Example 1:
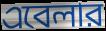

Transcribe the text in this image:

এবেলার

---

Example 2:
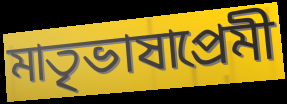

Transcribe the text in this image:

মাতৃভাষাপ্রেমী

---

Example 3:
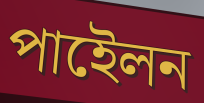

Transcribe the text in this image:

পাইেলন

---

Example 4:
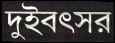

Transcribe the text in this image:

দুইবৎসর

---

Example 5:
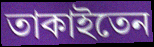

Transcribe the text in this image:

তাকাইতেন